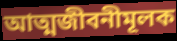
আত্মজীবনীমূলক